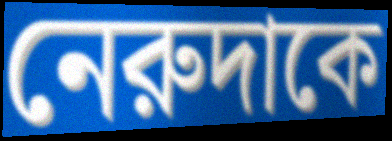
নেরুদাকে